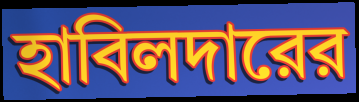
হাবিলদারের